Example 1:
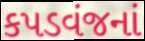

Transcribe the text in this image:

કપડવંજનાં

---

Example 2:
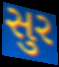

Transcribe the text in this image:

સુર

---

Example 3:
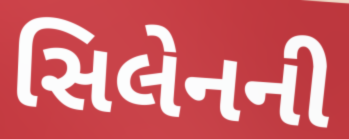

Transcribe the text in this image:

સિલેનની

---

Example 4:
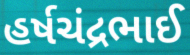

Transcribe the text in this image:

હર્ષચંદ્રભાઈ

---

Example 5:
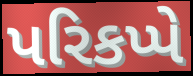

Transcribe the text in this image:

પરિકપ્પે